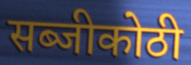
सब्जीकोठी